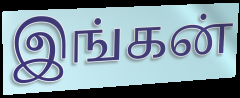
இங்கன்